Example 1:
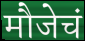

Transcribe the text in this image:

मौजेचं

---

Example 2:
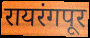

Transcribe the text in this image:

रायरंगपूर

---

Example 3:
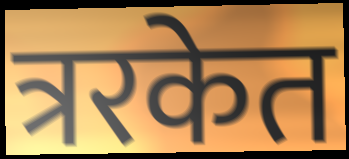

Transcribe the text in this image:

त्ररकेत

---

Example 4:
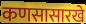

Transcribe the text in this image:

कणसासारखे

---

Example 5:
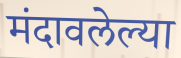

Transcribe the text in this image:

मंदावलेल्या